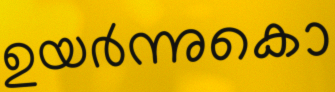
ഉയർന്നുകൊ